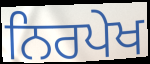
ਨਿਰਪੇਖ